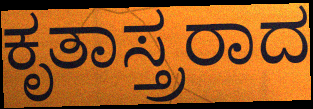
ಕೃತಾಸ್ತ್ರರಾದ